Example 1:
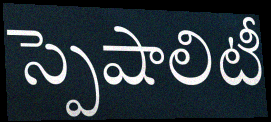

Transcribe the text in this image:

స్పెషాలిటీ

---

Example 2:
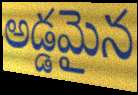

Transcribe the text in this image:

అడ్డమైన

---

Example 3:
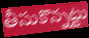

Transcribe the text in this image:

తీసుకొన్నట్టు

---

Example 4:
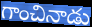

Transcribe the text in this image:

గాంచినాడు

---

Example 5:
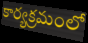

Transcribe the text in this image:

కార్యక్రమంలో